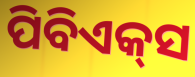
ପିବିଏକ୍‌ସ